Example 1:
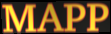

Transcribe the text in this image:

MAPP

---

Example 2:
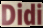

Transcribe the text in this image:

Didi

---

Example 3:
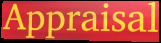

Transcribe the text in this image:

Appraisal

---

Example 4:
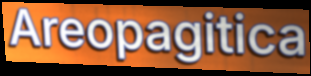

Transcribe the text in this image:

Areopagitica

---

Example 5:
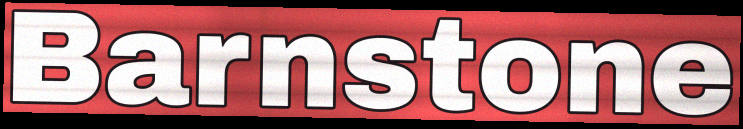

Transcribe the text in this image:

Barnstone